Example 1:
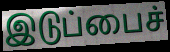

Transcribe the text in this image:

இடுப்பைச்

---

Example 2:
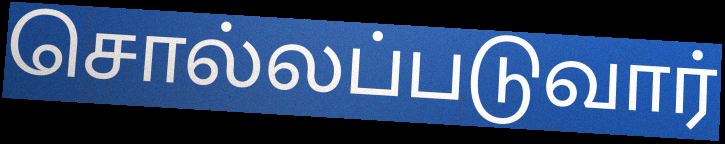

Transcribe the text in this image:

சொல்லப்படுவார்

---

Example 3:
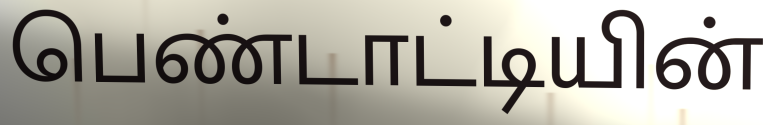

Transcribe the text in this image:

பெண்டாட்டியின்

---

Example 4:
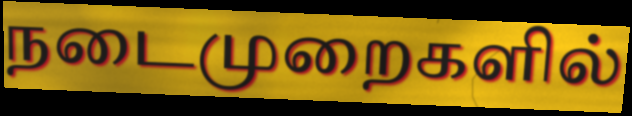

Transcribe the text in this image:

நடைமுறைகளில்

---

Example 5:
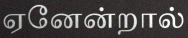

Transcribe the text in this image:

ஏனேன்றால்